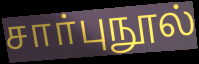
சார்புநூல்